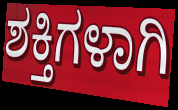
ಶಕ್ತಿಗಳಾಗಿ